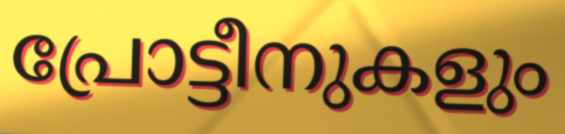
പ്രോട്ടീനുകളും